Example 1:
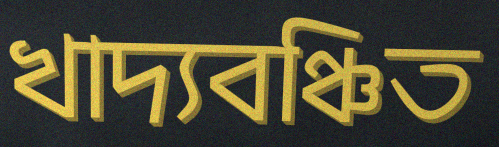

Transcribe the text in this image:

খাদ্যবঞ্চিত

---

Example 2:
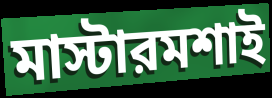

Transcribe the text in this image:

মাস্টারমশাই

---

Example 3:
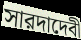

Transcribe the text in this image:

সারদাদেবী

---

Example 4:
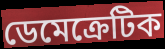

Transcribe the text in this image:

ডেমেক্রেটিক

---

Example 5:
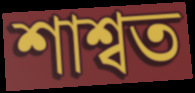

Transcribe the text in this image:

শাশ্বত